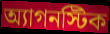
অ্যাগনস্টিক